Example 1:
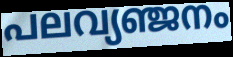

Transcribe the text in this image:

പലവ്യഞ്ജനം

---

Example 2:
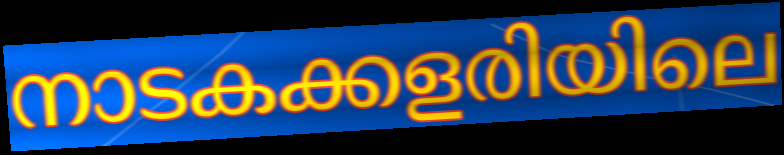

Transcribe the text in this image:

നാടകക്കളരിയിലെ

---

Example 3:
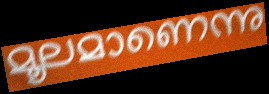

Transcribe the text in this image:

മൂലമാണെന്നു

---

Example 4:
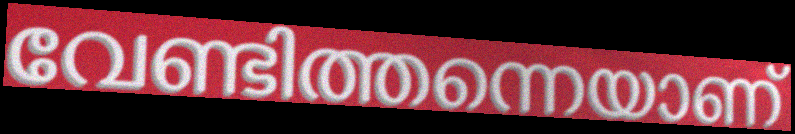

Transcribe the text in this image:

വേണ്ടിത്തന്നെയാണ്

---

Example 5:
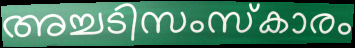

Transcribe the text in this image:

അച്ചടിസംസ്കാരം